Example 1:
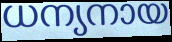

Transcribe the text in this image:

ധന്യനായ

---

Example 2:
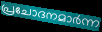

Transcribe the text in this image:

പ്രചോദനമാർന്ന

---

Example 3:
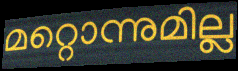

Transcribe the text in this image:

മറ്റൊന്നുമില്ല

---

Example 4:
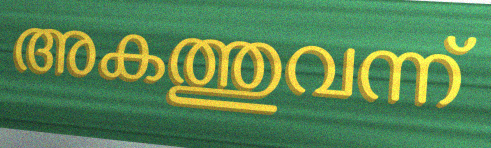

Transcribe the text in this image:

അകത്തുവന്ന്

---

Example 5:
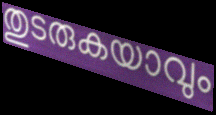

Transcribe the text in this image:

തുടരുകയാവും